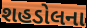
શહડોલના